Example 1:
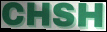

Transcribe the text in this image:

CHSH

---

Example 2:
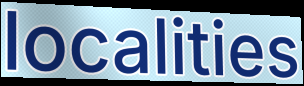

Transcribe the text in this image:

localities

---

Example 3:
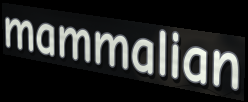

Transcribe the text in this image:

mammalian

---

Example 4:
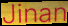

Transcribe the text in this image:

Jinan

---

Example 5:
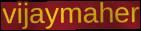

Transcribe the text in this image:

vijaymaher